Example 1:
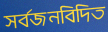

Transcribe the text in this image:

সর্বজনবিদিত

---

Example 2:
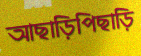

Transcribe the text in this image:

আছাড়িপিছাড়ি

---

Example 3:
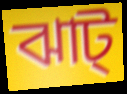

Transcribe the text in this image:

ঝাট্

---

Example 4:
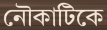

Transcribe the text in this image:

নৌকাটিকে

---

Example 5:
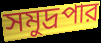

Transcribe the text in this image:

সমুদ্রপার